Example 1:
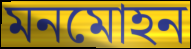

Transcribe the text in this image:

মনমোহন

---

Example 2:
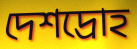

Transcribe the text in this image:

দেশদ্রোহ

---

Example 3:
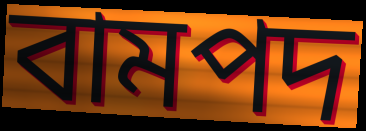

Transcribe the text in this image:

বামপদ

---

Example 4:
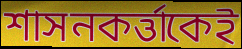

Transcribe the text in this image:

শাসনকর্ত্তাকেই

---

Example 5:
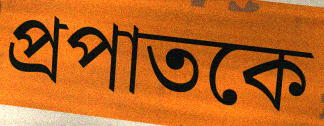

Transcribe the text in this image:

প্রপাতকে